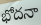
భోదనా